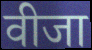
वीजा